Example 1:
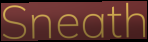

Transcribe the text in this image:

Sneath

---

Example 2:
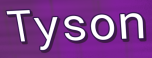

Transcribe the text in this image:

Tyson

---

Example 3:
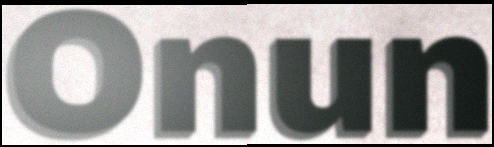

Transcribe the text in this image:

Onun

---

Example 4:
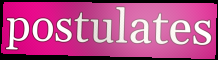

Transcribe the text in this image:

postulates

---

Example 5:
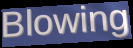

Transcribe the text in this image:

Blowing